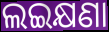
ଲଇକ୍ଷଣା